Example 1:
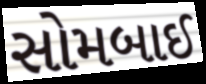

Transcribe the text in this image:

સોમબાઈ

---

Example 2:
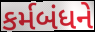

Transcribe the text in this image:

કર્મબંધને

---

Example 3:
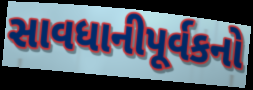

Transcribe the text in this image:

સાવધાનીપૂર્વકનો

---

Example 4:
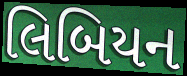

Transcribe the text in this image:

લિબિયન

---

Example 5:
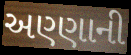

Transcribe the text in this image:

અણ્ણાની